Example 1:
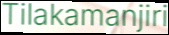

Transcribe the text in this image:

Tilakamanjiri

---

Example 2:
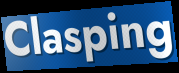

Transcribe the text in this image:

Clasping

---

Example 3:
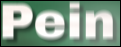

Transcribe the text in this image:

Pein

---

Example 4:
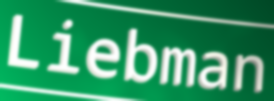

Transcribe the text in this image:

Liebman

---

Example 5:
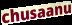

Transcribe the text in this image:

chusaanu